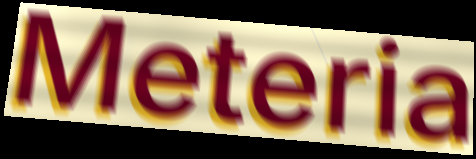
Meteria